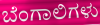
ಬೆಂಗಾಲಿಗಳು